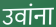
उवांना